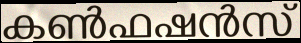
കൺഫഷൻസ്